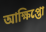
আক্ষিপ্তো